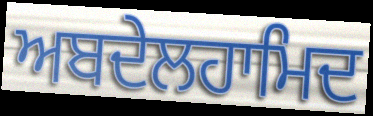
ਅਬਦੇਲਹਾਮਿਦ